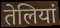
तेलियां